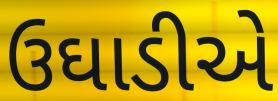
ઉઘાડીએ